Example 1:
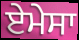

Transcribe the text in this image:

ਏਮੇਸਾ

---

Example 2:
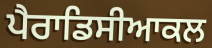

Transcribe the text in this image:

ਪੈਰਾਡਿਸੀਆਕਲ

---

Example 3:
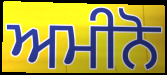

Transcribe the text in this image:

ਅਮੀਨੋ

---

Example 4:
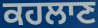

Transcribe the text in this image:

ਕਹਲਾਣ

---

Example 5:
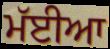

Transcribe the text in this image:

ਮੱਈਆ